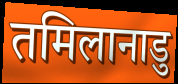
तमिलानाडु